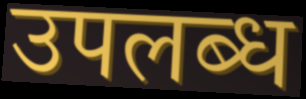
उपलब्ध